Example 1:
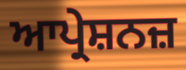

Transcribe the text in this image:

ਆਪ੍ਰੇਸ਼ਨਜ਼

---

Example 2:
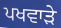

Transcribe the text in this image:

ਪਖਵਾੜੇ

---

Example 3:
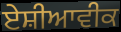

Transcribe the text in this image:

ਏਸ਼ੀਆਵੀਕ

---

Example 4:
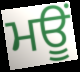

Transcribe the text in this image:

ਮਊਂ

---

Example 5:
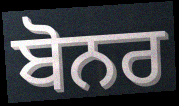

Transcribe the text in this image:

ਬੋਨਰ